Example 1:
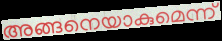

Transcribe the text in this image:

അങ്ങനെയാകുമെന്ന്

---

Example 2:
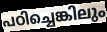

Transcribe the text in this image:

പഠിച്ചെങ്കിലും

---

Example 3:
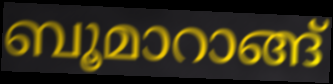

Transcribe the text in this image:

ബൂമാറാങ്ങ്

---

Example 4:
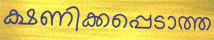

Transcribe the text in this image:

ക്ഷണിക്കപ്പെടാത്ത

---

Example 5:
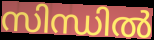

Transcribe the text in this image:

സിന്ധിൽ